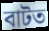
বাটত